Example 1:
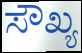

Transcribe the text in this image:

ಸೌಖ್ಯ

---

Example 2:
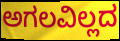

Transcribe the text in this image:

ಅಗಲವಿಲ್ಲದ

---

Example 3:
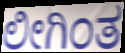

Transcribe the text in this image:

ಲೀಗಿಂತ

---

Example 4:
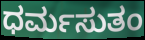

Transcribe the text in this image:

ಧರ್ಮಸುತಂ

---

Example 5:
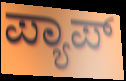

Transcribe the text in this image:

ಪ್ಯಾಪ್